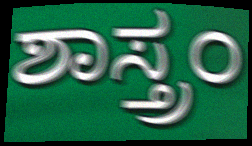
ಶಾಸ್ತ್ರಂ